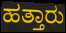
ಹತ್ತಾರು